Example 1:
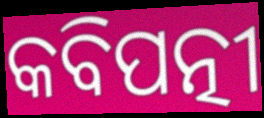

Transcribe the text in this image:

କବିପତ୍ନୀ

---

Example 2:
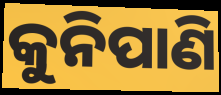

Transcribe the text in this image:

କୁନିପାଣି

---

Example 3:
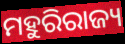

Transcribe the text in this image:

ମହୁରିରାଜ୍ୟ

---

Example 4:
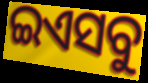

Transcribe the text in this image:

ଇଏସବୁ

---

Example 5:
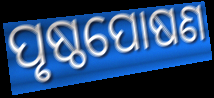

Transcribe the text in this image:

ପୃଷ୍ଠପୋଷଣ